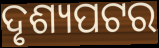
ଦୃଶ୍ୟପଟର